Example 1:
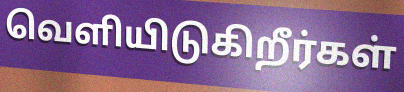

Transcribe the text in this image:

வெளியிடுகிறீர்கள்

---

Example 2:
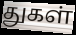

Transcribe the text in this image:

துகள்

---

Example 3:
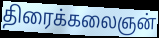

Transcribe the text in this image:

திரைக்கலைஞன்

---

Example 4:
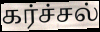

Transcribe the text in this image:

கர்ச்சல்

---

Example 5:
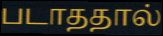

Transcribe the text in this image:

படாததால்